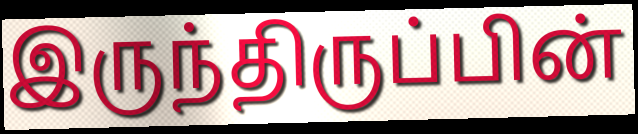
இருந்திருப்பின்